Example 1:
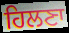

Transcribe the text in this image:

ਹਿਲਣਾ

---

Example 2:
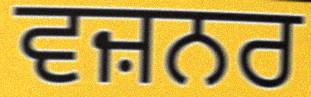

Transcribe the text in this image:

ਵਜ਼ਨਰ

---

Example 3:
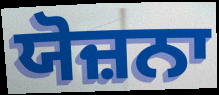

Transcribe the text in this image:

ਯੋਜ਼ਨਾ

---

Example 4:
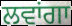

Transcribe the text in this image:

ਲਵਾਂਗਾ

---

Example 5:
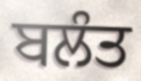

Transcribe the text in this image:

ਬਲੰਤ